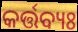
କର୍ତ୍ତବ୍ୟଃ